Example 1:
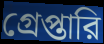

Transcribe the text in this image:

গ্রেপ্তারি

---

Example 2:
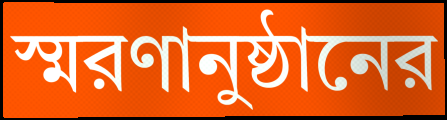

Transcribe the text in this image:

স্মরণানুষ্ঠানের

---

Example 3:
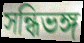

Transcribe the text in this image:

সন্ধিভঙ্গ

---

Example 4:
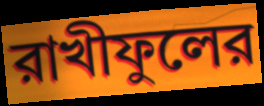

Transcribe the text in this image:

রাখীফুলের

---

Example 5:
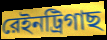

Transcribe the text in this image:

রেইনট্রিগাছ